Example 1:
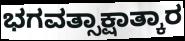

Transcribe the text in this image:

ಭಗವತ್ಸಾಕ್ಷಾತ್ಕಾರ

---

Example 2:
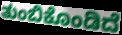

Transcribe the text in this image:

ತುಂಬಿಕೊಂಡಿದೆ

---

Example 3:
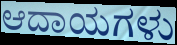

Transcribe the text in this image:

ಆದಾಯಗಳು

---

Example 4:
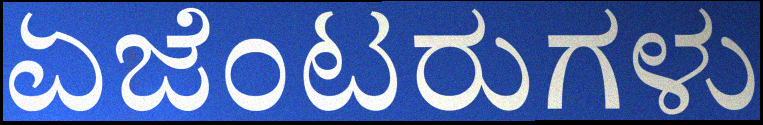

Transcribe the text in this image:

ಏಜೆಂಟರುಗಳು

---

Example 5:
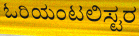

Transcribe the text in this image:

ಓರಿಯಂಟಲಿಸ್ಟರ